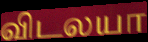
விடலயா